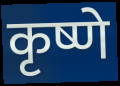
कृष्णे